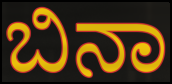
ಬಿನಾ